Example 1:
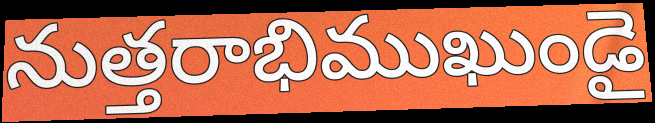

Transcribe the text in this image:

నుత్తరాభిముఖుండై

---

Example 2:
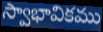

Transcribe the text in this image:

స్వాభావికము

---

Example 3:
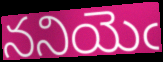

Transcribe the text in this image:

ననియెఁ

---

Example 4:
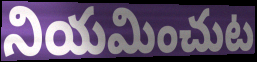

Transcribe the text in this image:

నియమించుట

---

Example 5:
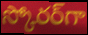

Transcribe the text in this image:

స్కోరర్‌గా